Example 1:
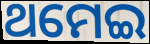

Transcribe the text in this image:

ଥମେଇ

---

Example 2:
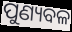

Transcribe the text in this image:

ପୁଣ୍ୟବଳ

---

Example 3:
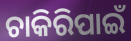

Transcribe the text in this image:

ଚାକିରିପାଇଁ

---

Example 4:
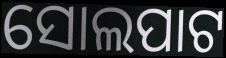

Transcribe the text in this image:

ସୋଲପାଟ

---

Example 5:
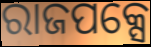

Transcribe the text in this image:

ରାଜପକ୍ସେ